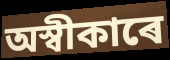
অস্বীকাৰে